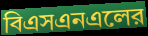
বিএসএনএলের